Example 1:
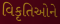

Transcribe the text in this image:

વિકૃતિઓને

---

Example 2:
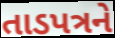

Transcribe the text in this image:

તાડપત્રને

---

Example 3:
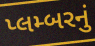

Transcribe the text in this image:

પ્લમ્બરનું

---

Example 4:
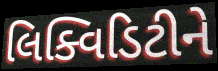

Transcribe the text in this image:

લિક્વિડિટીને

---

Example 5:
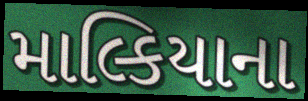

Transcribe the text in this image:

માલ્કિયાના